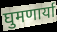
घुमणार्या